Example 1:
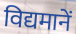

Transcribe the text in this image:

विद्यमानें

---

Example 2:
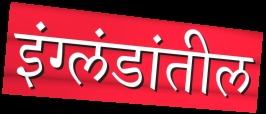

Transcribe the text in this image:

इंग्लंडांतील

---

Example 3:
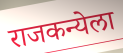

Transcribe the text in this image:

राजकन्येला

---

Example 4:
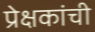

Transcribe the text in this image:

प्रेक्षकांची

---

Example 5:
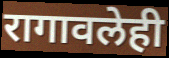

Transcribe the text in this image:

रागावलेही